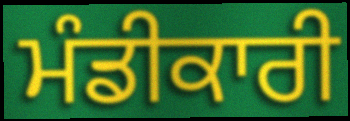
ਮੰਡੀਕਾਰੀ